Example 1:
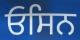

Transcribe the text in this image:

ਓਸਿਨ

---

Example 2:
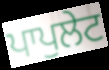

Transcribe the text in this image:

ਪਾਪੁਲੇਟ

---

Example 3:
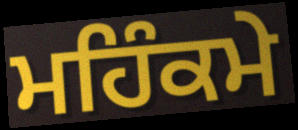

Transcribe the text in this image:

ਮਹਿੰਕਮੇ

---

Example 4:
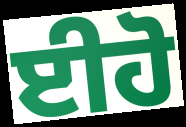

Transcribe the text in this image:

ਈਹੋ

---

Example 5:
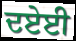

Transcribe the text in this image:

ਦਏਈ